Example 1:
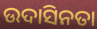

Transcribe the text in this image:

ଉଦାସିନତା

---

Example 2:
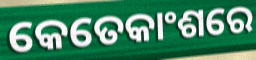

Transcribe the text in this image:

କେତେକାଂଶରେ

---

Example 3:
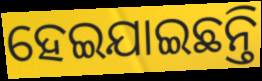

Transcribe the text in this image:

ହେଇଯାଇଛନ୍ତି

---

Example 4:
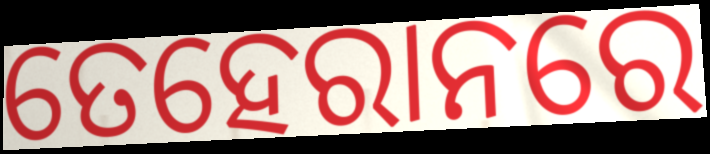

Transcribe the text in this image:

ତେହେରାନରେ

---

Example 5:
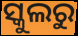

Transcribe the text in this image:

ସ୍କୁଲରୁ